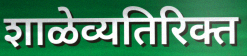
शाळेव्यतिरिक्त